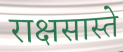
राक्षसास्ते